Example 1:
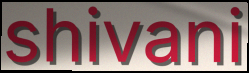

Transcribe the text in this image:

shivani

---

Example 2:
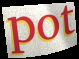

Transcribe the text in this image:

pot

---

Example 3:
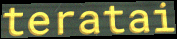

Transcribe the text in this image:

teratai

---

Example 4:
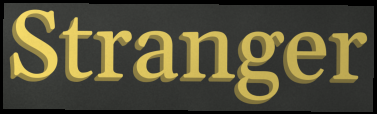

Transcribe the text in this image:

Stranger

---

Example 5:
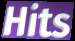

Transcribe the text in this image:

Hits